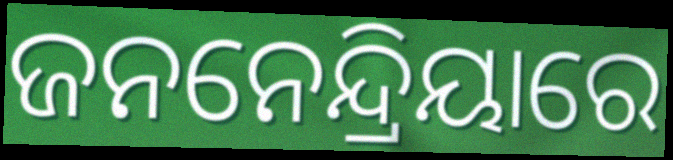
ଜନନେନ୍ଦ୍ରିୟାରେ